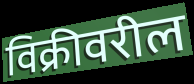
विक्रीवरील